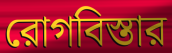
রোগবিস্তার